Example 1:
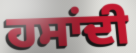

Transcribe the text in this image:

ਹਸਾਂਦੀ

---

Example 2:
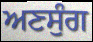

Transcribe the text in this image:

ਅਣਸੁੰਗ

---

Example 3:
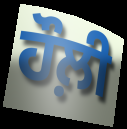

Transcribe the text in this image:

ਹੌਲ਼ੀ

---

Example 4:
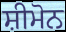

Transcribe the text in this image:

ਸ਼ੀਮੋਨ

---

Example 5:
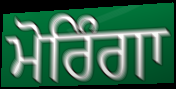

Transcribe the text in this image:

ਮੋਰਿੰਗਾ